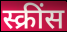
स्क्रींस